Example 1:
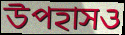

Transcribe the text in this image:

উপহাসও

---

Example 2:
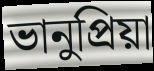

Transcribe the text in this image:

ভানুপ্রিয়া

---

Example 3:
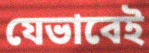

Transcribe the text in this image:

যেভাবেই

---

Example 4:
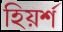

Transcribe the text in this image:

হিয়র্শ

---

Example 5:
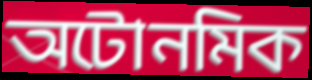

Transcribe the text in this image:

অটোনমিক